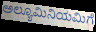
ಅಲ್ಯೂಮಿನಿಯಮಿಗೆ